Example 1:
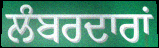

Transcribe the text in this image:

ਲੰਬਰਦਾਰਾਂ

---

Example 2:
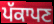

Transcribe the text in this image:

ਪੱਕਾਪਣ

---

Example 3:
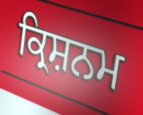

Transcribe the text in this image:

ਕ੍ਰਿਸ਼ਨਮ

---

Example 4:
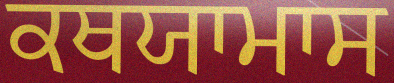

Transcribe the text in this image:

ਕਥਯਾਮਾਸ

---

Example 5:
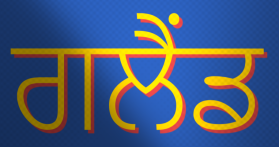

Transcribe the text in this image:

ਗਲੈਂਡ